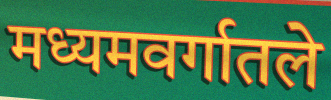
मध्यमवर्गातले